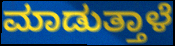
ಮಾಡುತ್ತಾಳೆ